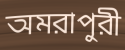
অমরাপুরী